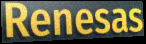
Renesas